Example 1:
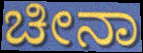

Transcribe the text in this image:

ಚೀನಾ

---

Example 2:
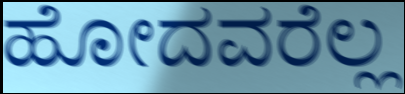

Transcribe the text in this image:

ಹೋದವರೆಲ್ಲ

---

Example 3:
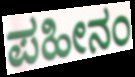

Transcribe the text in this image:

ಪಹೀನಂ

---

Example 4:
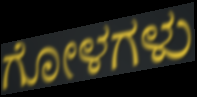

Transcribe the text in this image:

ಗೋಳಗಳು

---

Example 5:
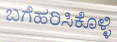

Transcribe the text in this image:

ಬಗೆಹರಿಸಿಕೊಳ್ಳಿ